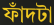
ফাঁদটা